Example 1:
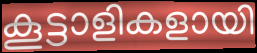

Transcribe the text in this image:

കൂട്ടാളികളായി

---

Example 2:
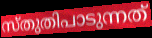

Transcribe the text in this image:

സ്തുതിപാടുന്നത്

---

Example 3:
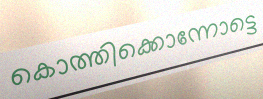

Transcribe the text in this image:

കൊത്തിക്കൊന്നോട്ടെ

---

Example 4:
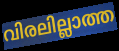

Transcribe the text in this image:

വിരലില്ലാത്ത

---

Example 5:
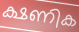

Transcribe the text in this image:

ക്ഷണിക